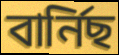
বাৰ্নিছ